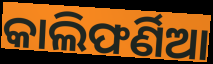
କାଲିଫର୍ଣିଆ